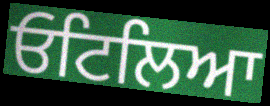
ਓਟਿਲਿਆ